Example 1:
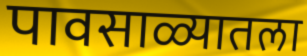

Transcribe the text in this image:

पावसाळ्यातला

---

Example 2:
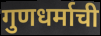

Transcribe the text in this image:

गुणधर्माची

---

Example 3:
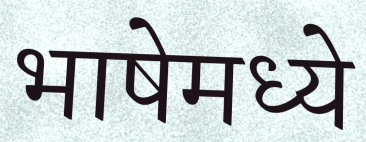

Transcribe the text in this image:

भाषेमध्ये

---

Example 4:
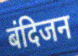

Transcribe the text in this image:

बंदिजन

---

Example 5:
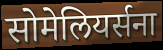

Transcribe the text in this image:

सोमेलियर्सना